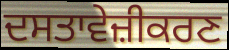
ਦਸਤਾਵੇਜ਼ੀਕਰਣ